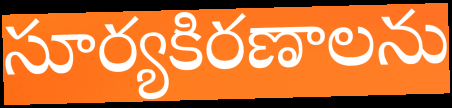
సూర్యకిరణాలను